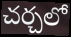
చర్చలో